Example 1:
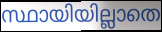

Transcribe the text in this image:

സ്ഥായിയില്ലാതെ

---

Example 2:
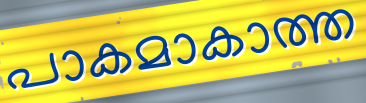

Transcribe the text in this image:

പാകമാകാത്ത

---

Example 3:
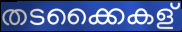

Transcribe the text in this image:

തടക്കൈകള്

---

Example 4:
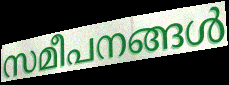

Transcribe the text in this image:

സമീപനങ്ങൾ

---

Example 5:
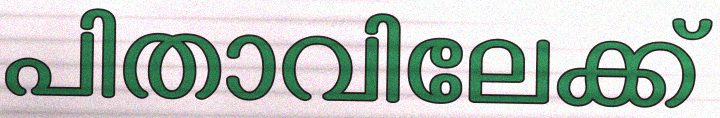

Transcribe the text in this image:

പിതാവിലേക്ക്